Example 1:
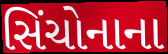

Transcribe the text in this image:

સિંચોનાના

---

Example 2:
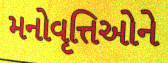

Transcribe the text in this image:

મનોવૃત્તિઓને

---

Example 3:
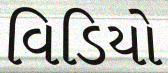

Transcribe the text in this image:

વિડિયો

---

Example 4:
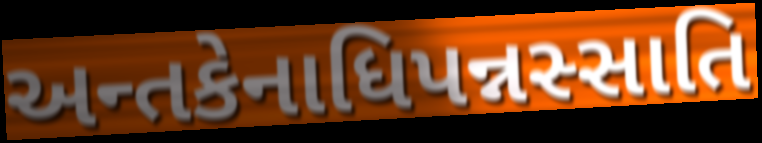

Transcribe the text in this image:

અન્તકેનાધિપન્નસ્સાતિ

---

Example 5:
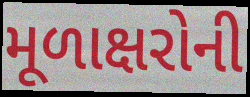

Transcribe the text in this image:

મૂળાક્ષરોની